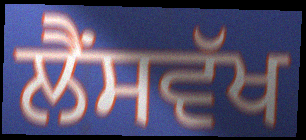
ਲੈਂਸਵੱਖ